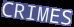
CRIMES